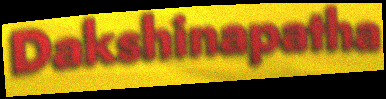
Dakshinapatha